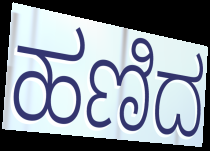
ಹಣಿದ